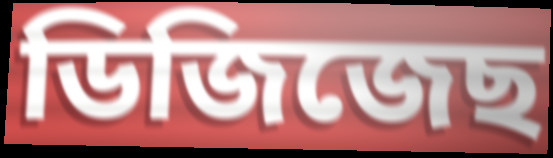
ডিজিজেছ